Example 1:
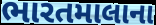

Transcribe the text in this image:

ભારતમાલાના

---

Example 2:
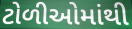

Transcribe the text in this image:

ટોળીઓમાંથી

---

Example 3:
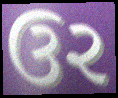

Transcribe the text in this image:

ઉર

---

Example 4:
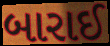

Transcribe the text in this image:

બારાઈ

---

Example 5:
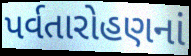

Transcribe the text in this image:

પર્વતારોહણનાં